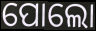
ପୋଲୋ